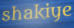
shakiye